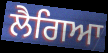
ਲੈਗਿਆ